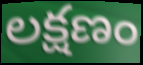
లక్షణం